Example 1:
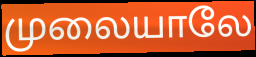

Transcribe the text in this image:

முலையாலே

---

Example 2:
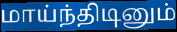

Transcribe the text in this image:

மாய்ந்திடினும்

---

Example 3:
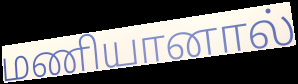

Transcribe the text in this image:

மணியானால்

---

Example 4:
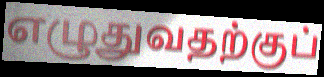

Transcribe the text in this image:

எழுதுவதற்குப்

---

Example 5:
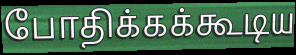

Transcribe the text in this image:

போதிக்கக்கூடிய